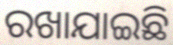
ରଖାଯାଇଛି